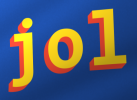
jol